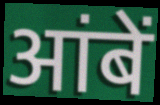
आंबें